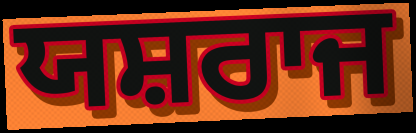
ਯਸ਼ਰਾਜ